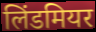
लिंडमियर